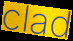
clad